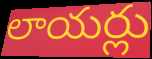
లాయర్లు